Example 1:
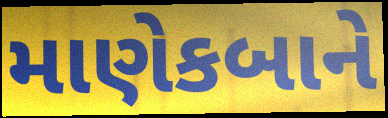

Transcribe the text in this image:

માણેકબાને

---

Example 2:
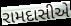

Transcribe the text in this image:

રામદાસીએ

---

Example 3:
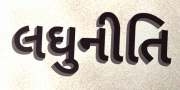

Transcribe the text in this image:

લઘુનીતિ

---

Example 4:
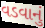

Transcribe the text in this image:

વડવાનું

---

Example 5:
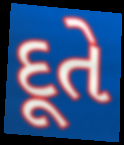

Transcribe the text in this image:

દૂતે